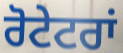
ਰੋਟੇਟਰਾਂ